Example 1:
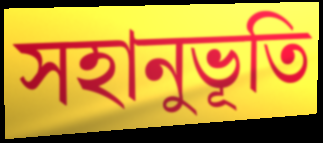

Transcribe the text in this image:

সহানুভূতি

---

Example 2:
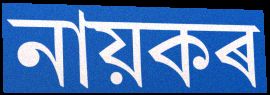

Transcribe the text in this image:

নায়কৰ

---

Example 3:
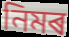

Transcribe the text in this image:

নিমৰ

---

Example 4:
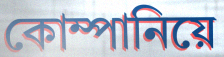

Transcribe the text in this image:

কোম্পানিয়ে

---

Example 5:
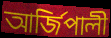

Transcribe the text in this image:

আৰ্জিপালী